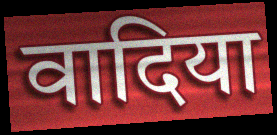
वादिया